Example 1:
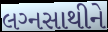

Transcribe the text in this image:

લગ્‍નસાથીને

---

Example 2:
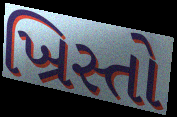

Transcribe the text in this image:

ખ્રિસ્તો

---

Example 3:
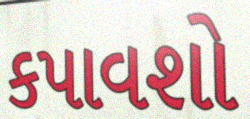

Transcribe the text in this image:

કપાવશો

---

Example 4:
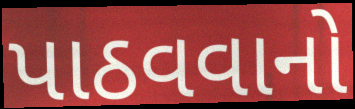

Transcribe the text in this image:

પાઠવવાનો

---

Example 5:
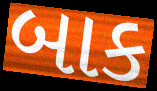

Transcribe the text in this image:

બાક